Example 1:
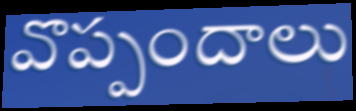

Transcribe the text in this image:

వొప్పందాలు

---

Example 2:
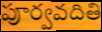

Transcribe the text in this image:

పూర్వవదితి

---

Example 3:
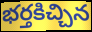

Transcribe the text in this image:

భర్తకిచ్చిన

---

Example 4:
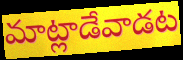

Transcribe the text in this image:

మాట్లాడేవాడట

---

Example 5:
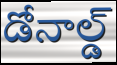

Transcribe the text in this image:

డోనాల్డ్